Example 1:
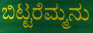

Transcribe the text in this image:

ಬಿಟ್ಟರೆಮ್ಮನು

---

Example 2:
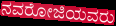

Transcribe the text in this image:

ನವರೋಜಿಯವರು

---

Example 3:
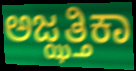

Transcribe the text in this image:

ಅಜ್ಝತ್ತಿಕಾ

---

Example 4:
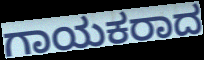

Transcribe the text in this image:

ಗಾಯಕರಾದ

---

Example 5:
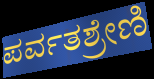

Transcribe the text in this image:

ಪರ್ವತಶ್ರೇಣಿ